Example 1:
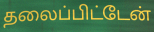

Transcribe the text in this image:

தலைப்பிட்டேன்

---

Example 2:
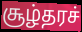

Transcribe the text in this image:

சூழ்தரச்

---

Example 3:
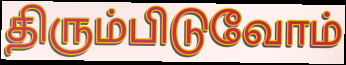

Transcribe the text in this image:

திரும்பிடுவோம்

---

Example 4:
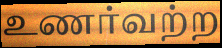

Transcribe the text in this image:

உணர்வற்ற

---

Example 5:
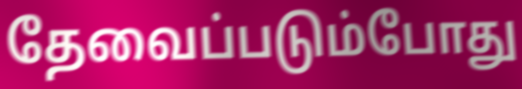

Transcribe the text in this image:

தேவைப்படும்போது